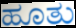
ಹೂತು